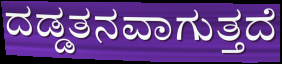
ದಡ್ಡತನವಾಗುತ್ತದೆ